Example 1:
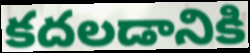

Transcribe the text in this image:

కదలడానికి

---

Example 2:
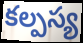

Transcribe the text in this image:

కల్పస్య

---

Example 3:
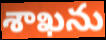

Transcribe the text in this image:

శాఖను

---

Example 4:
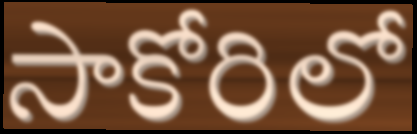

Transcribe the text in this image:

సాకోరిలో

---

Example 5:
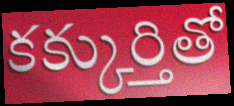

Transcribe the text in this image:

కక్కుర్తితో